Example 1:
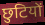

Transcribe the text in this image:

छुटियों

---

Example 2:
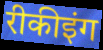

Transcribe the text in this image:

रीकीइंग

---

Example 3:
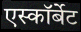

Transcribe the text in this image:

एस्कॉर्बेट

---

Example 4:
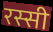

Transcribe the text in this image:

रस्‍सी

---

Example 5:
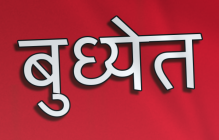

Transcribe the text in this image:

बुध्येत